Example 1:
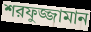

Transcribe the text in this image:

শরফুজ্জামান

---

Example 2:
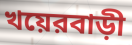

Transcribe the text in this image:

খয়েরবাড়ী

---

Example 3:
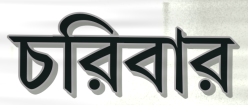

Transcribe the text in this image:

চরিবার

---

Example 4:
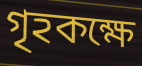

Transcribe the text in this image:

গৃহকক্ষে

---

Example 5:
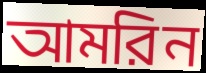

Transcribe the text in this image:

আমরিন